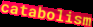
catabolism